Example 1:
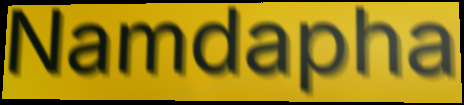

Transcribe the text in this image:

Namdapha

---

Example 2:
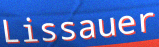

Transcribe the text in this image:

Lissauer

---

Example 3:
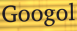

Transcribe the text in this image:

Googol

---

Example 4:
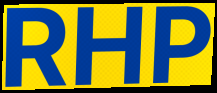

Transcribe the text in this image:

RHP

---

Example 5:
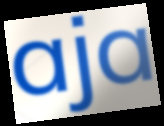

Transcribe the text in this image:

aja